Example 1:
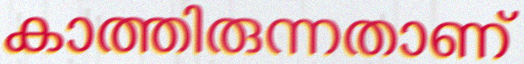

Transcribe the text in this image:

കാത്തിരുന്നതാണ്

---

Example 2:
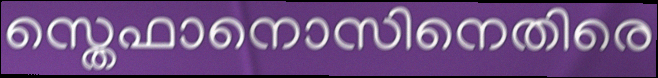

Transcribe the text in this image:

സ്തെഫാനൊസിനെതിരെ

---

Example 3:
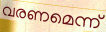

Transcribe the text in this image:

വരണമെന്ന്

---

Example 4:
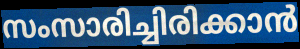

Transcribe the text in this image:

സംസാരിച്ചിരിക്കാൻ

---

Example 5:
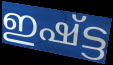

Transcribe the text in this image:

ഇഷ്ട്ട